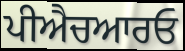
ਪੀਐਚਆਰਓ